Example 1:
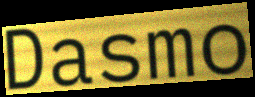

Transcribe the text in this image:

Dasmo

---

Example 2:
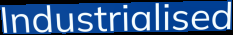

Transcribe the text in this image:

Industrialised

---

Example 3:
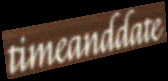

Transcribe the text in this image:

timeanddate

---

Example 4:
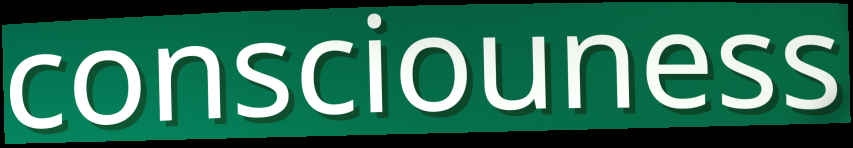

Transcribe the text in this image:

consciouness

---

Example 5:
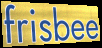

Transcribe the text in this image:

frisbee